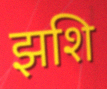
झशि